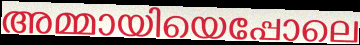
അമ്മായിയെപ്പോലെ